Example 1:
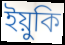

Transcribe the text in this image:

ইয়ুকি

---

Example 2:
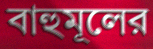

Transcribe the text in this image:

বাহুমূলের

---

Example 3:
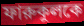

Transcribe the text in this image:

ফারুকুলকে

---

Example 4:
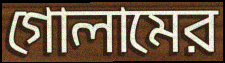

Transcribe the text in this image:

গোলামের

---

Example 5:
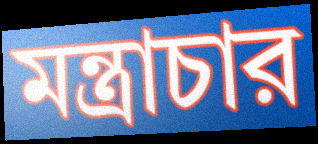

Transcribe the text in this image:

মন্ত্রাচার